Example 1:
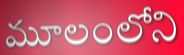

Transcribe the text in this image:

మూలంలోని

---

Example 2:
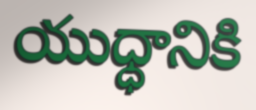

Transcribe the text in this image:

యుధ్ధానికి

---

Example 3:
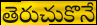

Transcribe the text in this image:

తెరుచుకొనే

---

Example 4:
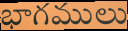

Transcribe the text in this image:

భాగములు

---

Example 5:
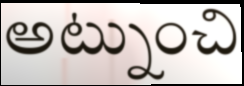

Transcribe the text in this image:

అట్నుంచి